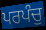
ਪਰਪੰਚੁ